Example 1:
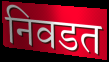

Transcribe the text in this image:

निवडत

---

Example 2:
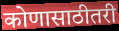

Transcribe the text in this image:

कोणासाठीतरी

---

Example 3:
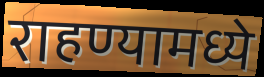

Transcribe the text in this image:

राहण्यामध्ये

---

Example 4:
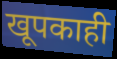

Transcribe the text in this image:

खूपकाही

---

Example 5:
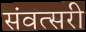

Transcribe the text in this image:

संवत्सरी